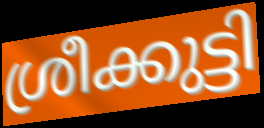
ശ്രീക്കുട്ടി